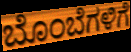
ಬೊಂಬೆಗಳಿಗೆ